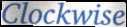
Clockwise